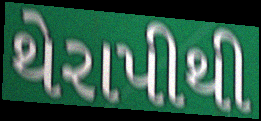
થેરાપીથી